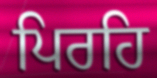
ਪਿਰਹਿ